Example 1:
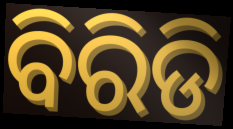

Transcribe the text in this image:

ବିରିଡି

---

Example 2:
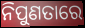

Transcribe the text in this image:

ନିପୁଣତାରେ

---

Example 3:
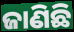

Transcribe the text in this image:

ଜାଣିଛି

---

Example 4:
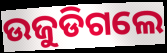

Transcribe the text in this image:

ଉଜୁଡିଗଲେ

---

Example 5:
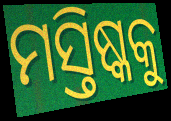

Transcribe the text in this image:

ମସ୍ତିଷ୍କକୁ